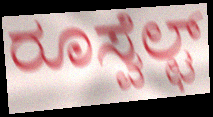
ರೂಸ್ವೆಲ್ಟ್